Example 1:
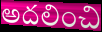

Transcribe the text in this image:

అదలించి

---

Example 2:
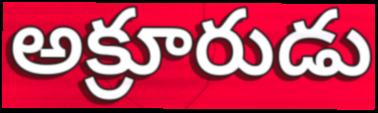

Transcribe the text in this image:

అక్రూరుడు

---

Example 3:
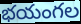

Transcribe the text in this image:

భయంగల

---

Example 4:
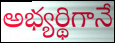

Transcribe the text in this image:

అభ్యర్థిగానే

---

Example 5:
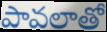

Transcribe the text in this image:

పావలాతో